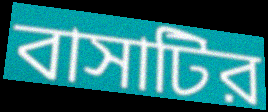
বাসাটির